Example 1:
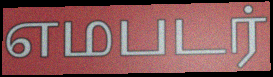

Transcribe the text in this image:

எமபடர்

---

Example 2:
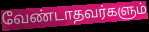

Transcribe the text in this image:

வேண்டாதவர்களும்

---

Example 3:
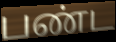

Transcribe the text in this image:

பண்ட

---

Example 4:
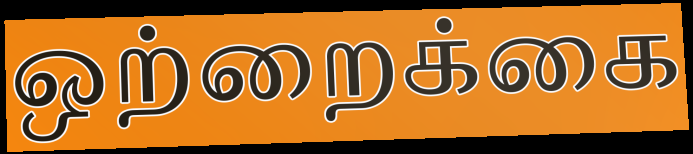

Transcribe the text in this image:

ஒற்றைக்கை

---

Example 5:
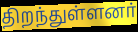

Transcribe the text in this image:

திறந்துள்ளனர்